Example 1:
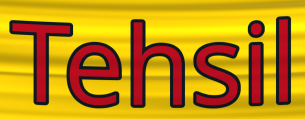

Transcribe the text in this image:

Tehsil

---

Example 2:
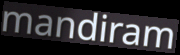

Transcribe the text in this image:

mandiram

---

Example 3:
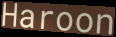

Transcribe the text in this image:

Haroon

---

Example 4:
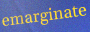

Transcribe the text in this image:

emarginate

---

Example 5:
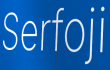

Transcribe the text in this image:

Serfoji